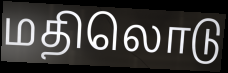
மதிலொடு